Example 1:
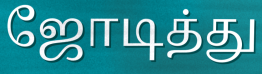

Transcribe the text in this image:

ஜோடித்து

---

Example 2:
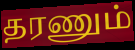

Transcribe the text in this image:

தரணும்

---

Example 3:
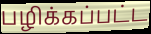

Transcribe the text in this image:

பழிக்கப்பட்ட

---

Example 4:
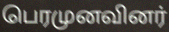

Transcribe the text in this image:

பெரமுனவினர்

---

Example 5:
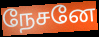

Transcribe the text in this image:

நேசனே